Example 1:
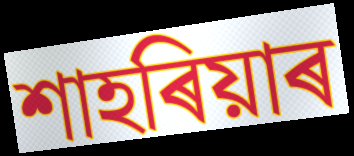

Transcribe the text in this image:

শাহৰিয়াৰ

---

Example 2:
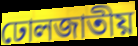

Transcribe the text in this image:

ঢোলজাতীয়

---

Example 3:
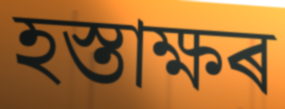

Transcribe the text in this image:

হস্তাক্ষৰ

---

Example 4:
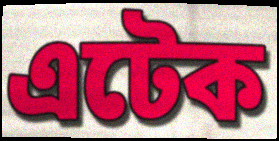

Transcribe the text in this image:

এটেক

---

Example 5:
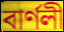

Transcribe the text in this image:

বাৰ্ণলী